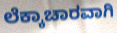
ಲೆಕ್ಕಾಚಾರವಾಗಿ